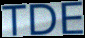
TDE